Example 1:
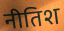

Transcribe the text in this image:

नीतिश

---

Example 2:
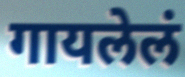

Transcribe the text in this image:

गायलेलं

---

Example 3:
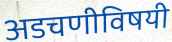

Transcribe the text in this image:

अडचणीविषयी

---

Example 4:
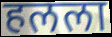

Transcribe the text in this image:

हलला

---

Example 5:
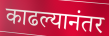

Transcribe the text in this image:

काढल्यानंतर